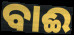
ବାଈ